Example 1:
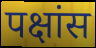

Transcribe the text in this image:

पक्षांस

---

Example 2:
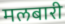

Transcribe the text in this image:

मलबारी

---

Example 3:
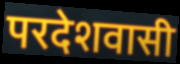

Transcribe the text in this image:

परदेशवासी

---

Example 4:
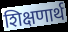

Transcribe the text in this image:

शिक्षणार्थ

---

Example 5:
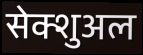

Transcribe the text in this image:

सेक्शुअल